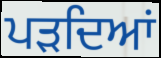
ਪੜਦਿਆਂ